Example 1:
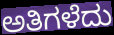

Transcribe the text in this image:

ಅತಿಗಳೆದು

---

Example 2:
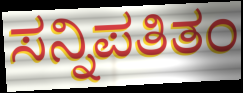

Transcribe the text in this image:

ಸನ್ನಿಪತಿತಂ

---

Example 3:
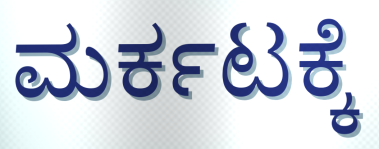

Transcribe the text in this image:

ಮರ್ಕಟಕ್ಕೆ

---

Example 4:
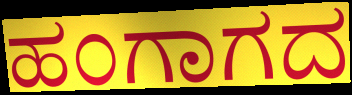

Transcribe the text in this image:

ಹಂಗಾಗದ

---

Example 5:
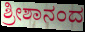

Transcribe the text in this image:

ಶ್ರೀಶಾನಂದ